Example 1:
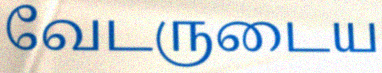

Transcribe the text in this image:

வேடருடைய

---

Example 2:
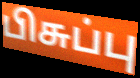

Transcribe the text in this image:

பிசுப்பு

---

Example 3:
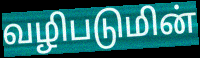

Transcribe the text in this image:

வழிபடுமின்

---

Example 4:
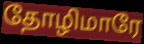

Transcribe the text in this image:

தோழிமாரே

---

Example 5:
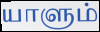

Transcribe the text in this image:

யாளும்